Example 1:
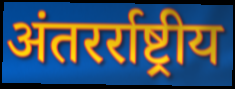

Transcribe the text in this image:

अंतरर्राष्ट्रीय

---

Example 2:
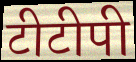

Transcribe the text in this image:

टीटीपी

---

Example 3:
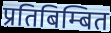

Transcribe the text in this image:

प्रतिबिम्बित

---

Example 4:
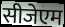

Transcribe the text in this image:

सीजेएम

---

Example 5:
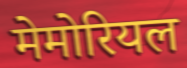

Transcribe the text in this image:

मेमोरियल